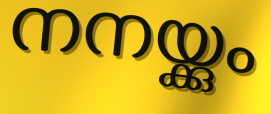
നനയ്ക്കും